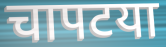
चापटया